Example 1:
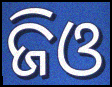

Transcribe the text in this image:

ଜିଓ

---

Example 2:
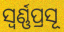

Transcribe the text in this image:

ସ୍ଵର୍ଣ୍ଣପ୍ରସୂ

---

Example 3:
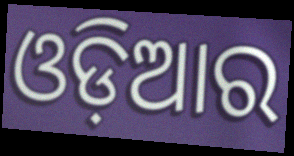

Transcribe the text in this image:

ଓଡ଼ିଆର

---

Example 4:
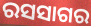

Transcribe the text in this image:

ରସସାଗର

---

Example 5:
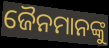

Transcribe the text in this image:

ଜୈନମାନଙ୍କୁ